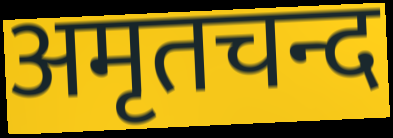
अमृतचन्द